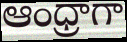
ఆంధ్రాగా